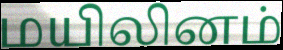
மயிலினம்